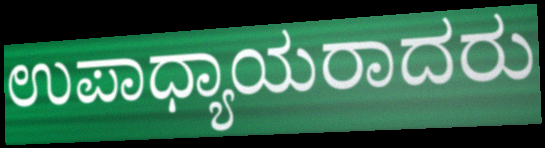
ಉಪಾಧ್ಯಾಯರಾದರು